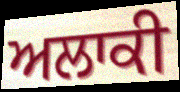
ਅਲਾਕੀ